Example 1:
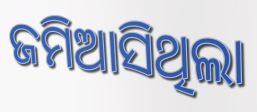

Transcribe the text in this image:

ଜମିଆସିଥିଲା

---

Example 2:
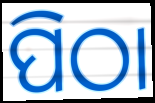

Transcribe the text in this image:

ପିଠା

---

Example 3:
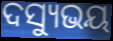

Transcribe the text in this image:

ଦସ୍ୟୁଭୟ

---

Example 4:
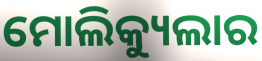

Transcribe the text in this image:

ମୋଲିକ୍ୟୁଲାର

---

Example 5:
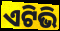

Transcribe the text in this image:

ଏଟିଭି